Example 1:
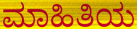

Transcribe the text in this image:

ಮಾಹಿತಿಯ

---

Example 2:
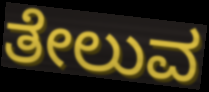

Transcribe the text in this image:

ತೇಲುವ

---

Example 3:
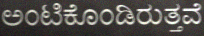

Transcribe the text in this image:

ಅಂಟಿಕೊಂಡಿರುತ್ತವೆ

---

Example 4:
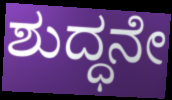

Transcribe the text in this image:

ಶುದ್ಧನೇ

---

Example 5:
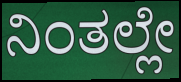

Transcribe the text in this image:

ನಿಂತಲ್ಲೇ